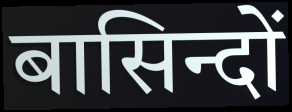
बासिन्दों